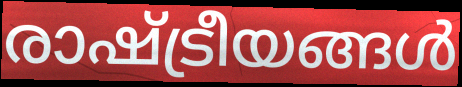
രാഷ്ട്രീയങ്ങൾ